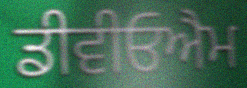
ਡੀਵੀਓਐਮ